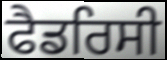
ਫੈਡਰਿਸੀ